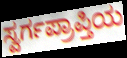
ಸ್ವರ್ಗಪ್ರಾಪ್ತಿಯ